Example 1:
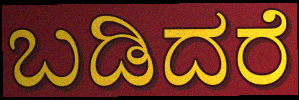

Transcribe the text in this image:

ಬಡಿದರೆ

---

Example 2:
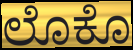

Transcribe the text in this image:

ಲೊಕೊ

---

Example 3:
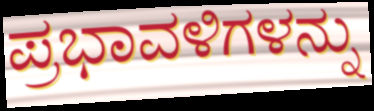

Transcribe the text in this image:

ಪ್ರಭಾವಳಿಗಳನ್ನು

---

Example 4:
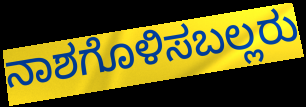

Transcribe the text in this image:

ನಾಶಗೊಳಿಸಬಲ್ಲರು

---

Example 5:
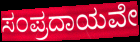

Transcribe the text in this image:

ಸಂಪ್ರದಾಯವೇ